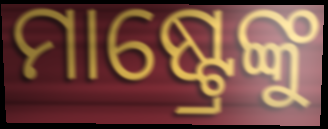
ମାଷ୍ଟ୍ରେଙ୍କୁ